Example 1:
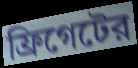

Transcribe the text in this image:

ফ্রিগেটের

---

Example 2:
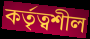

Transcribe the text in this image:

কর্তৃত্বশীল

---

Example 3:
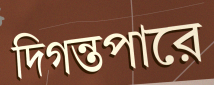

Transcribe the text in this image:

দিগন্তপারে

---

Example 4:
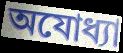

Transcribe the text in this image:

অযোধ্যা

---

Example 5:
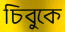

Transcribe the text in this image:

চিবুকে